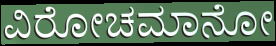
ವಿರೋಚಮಾನೋ